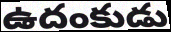
ఉదంకుడు